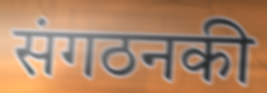
संगठनकी